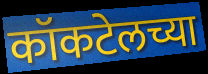
कॉकटेलच्या